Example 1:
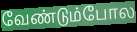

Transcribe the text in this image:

வேண்டும்போல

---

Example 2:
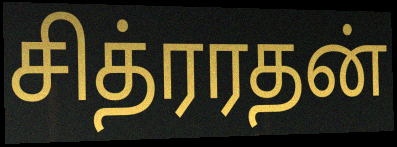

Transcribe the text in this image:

சித்ரரதன்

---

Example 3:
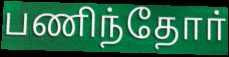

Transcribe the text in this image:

பணிந்தோர்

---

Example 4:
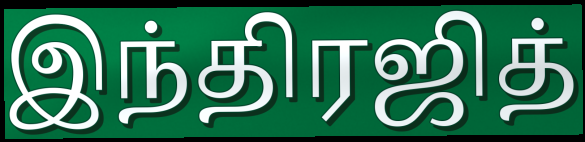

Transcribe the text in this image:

இந்திரஜித்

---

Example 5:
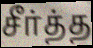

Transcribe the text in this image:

சீர்த்த